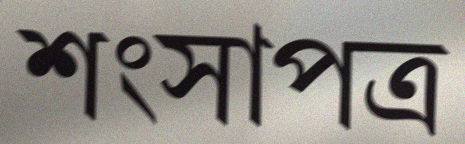
শংসাপত্র